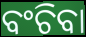
ବଂଚିବା